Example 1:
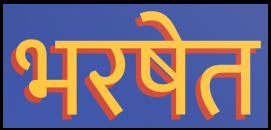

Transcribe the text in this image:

भरषेत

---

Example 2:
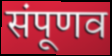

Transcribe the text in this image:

संपूणव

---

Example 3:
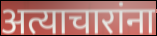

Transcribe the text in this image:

अत्याचारांना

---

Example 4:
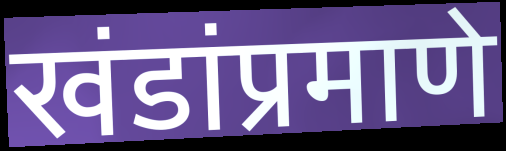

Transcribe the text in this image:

खंडांप्रमाणे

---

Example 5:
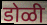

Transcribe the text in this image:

डोळी